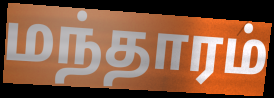
மந்தாரம்